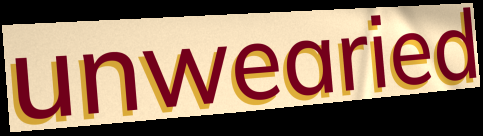
unwearied